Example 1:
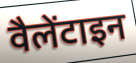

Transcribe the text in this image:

वैलेंटाइन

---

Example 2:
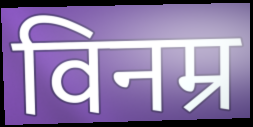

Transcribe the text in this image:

विनम्र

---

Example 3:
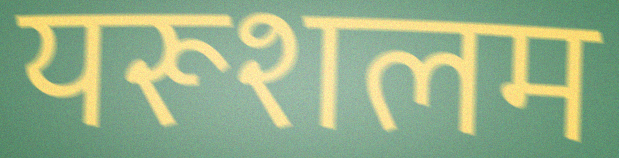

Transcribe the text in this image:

यरूशलम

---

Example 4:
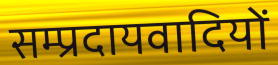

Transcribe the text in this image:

सम्प्रदायवादियों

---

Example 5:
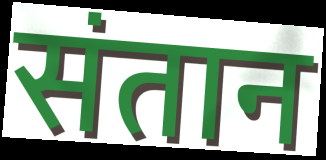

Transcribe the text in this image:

संतान